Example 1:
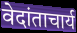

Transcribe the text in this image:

वेदांताचार्य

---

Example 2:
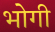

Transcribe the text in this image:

भोगी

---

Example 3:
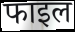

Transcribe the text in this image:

फाइल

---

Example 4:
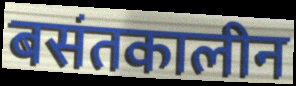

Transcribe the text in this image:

बसंतकालीन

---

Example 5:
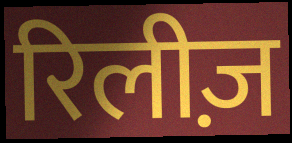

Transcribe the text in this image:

रिलीज़